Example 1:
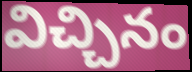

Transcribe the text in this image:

విచ్చినం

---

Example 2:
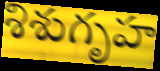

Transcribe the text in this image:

శిశుగృహ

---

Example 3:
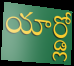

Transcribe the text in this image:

యార్డ్లో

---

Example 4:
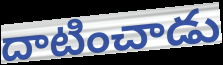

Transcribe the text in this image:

దాటించాడు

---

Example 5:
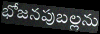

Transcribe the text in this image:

భోజనపుబల్లను